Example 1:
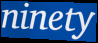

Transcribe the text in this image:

ninety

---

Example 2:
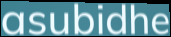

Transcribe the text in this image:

asubidhe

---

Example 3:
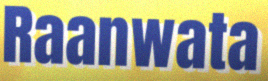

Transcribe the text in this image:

Raanwata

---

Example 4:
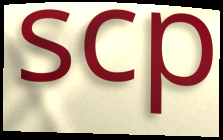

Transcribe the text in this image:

scp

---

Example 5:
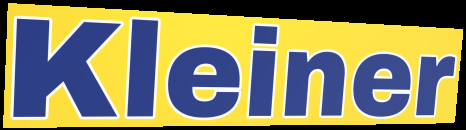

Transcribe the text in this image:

Kleiner